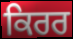
ਕਿਰਰ